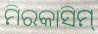
ମିରକାସିମ୍